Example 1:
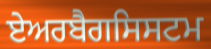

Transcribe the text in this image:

ਏਅਰਬੈਗਸਿਸਟਮ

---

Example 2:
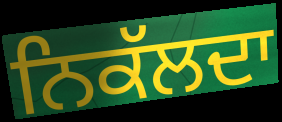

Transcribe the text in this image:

ਨਿਕੱਲਦਾ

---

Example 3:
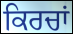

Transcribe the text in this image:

ਕਿਰਚਾਂ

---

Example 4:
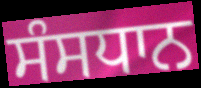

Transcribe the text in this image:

ਸੰਸਧਾਨ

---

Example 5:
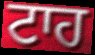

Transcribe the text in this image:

ਟਾਹ